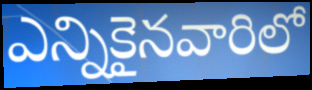
ఎన్నికైనవారిలో